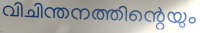
വിചിന്തനത്തിന്റെയും